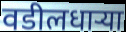
वडीलधाऱ्या